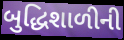
બુદ્ધિશાળીની